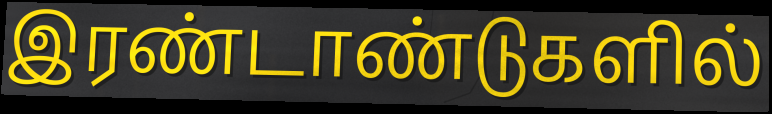
இரண்டாண்டுகளில்